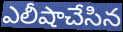
ఎలీషాచేసిన